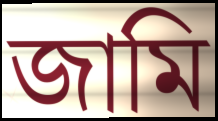
জামি